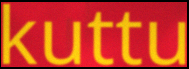
kuttu